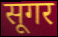
सूगर